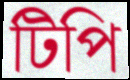
টিপি